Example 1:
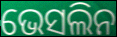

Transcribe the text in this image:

ଭେସଲିନ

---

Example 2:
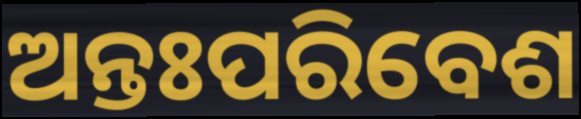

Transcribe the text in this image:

ଅନ୍ତଃପରିବେଶ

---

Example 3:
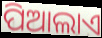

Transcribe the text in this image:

ପିଆଲାଏ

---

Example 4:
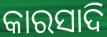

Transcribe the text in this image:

କାରସାଦି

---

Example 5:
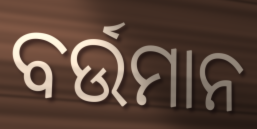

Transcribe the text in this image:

ବର୍ଉମାନ